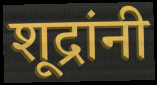
शूद्रांनी